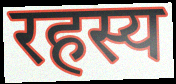
रहस्य